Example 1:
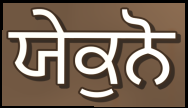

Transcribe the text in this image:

ਯੇਕੁਨੋ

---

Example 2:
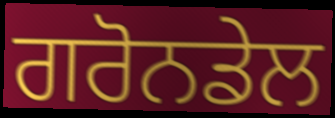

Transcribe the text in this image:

ਗਰੋਨਡੇਲ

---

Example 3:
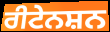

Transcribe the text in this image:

ਰੀਟੇਨਸ਼ਨ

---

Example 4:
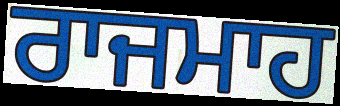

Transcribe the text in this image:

ਰਾਜਮਾਹ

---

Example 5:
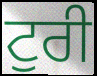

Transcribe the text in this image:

ਟੁਰੀ